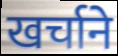
खर्चाने